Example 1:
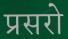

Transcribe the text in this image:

प्रसरो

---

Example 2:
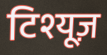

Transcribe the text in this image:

टिश्यूज़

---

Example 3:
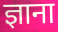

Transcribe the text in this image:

ज्ञाना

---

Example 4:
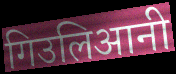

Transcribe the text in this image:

गिउलिआनी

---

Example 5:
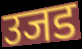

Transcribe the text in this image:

उजड